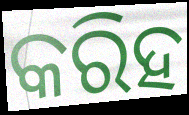
କରିହ